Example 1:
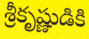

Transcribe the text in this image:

శ్రీకృష్ణుడికి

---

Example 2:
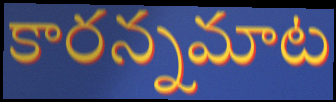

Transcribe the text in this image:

కారన్నమాట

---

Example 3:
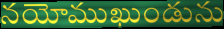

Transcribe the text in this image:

నయోముఖుండును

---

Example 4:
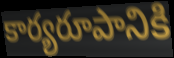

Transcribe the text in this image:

కార్యరూపానికి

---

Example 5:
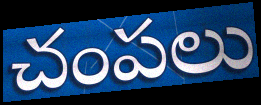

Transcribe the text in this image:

చంపలు